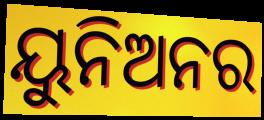
ୟୁନିଅନର